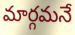
మార్గమనే